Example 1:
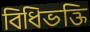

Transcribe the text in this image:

বিধিভক্তি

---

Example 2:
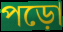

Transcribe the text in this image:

পড়ো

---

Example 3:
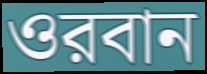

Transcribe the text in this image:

ওরবান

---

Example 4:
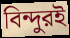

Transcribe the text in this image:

বিন্দুরই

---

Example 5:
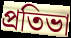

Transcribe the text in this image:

প্রতিভা